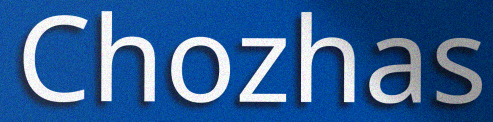
Chozhas